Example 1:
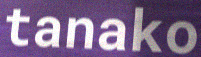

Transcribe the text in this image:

tanako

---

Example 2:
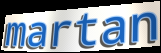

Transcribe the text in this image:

martan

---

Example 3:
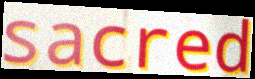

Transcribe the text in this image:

sacred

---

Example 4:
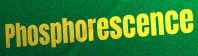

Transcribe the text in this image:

Phosphorescence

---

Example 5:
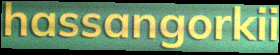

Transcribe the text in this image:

hassangorkii